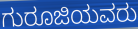
ಗುರೂಜಿಯವರು